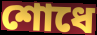
শোধে